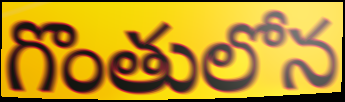
గొంతులోన